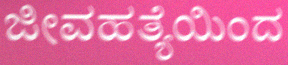
ಜೀವಹತ್ಯೆಯಿಂದ